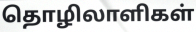
தொழிலாளிகள்